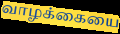
வாழக்கையை